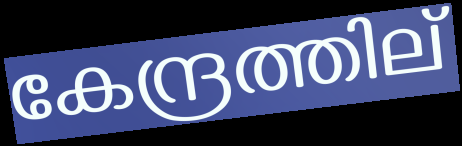
കേന്ദ്രത്തില്